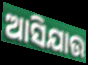
ଆସିଯାଉ